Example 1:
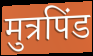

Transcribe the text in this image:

मुत्रपिंड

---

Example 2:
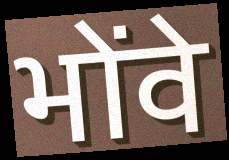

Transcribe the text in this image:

भोंवे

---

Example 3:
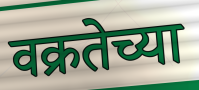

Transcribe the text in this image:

वक्रतेच्या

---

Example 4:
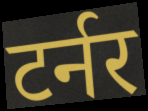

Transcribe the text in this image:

टर्नर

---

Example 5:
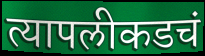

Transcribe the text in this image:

त्यापलीकडचं